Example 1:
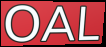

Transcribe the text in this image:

OAL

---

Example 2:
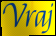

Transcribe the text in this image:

Vraj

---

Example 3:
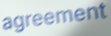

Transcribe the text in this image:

agreement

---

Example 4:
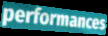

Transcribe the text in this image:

performances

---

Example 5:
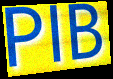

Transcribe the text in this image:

PIB